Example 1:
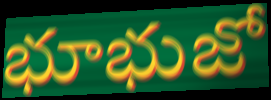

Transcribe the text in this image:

భూభుజో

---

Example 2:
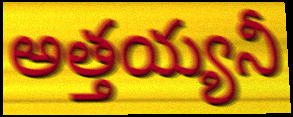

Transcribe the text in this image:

అత్తయ్యనీ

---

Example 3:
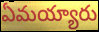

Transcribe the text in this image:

ఏమయ్యారు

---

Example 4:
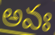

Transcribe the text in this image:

అవః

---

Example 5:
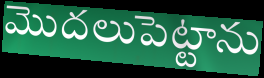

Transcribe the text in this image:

మొదలుపెట్టాను